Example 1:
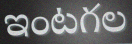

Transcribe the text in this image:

ఇంటగల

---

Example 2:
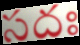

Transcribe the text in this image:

సదః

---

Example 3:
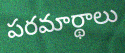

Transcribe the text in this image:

పరమార్థాలు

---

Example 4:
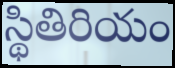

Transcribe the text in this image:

స్థితిరియం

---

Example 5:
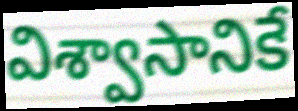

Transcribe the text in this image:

విశ్వాసానికే